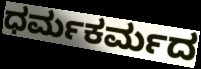
ಧರ್ಮಕರ್ಮದ